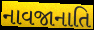
નાવજાનાતિ